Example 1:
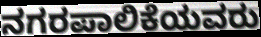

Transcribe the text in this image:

ನಗರಪಾಲಿಕೆಯವರು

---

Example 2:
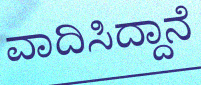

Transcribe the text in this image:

ವಾದಿಸಿದ್ದಾನೆ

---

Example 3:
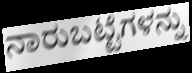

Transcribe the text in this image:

ನಾರುಬಟ್ಟೆಗಳನ್ನು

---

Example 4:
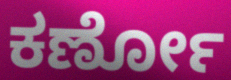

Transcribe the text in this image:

ಕರ್ಣೋ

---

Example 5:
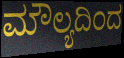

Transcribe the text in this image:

ಮೌಲ್ಯದಿಂದ